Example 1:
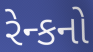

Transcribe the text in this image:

રેન્કનો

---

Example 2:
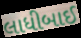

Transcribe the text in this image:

લાધીબાઈ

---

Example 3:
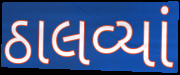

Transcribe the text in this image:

ઠાલવ્યાં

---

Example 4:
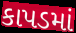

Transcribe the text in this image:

કાપડમાં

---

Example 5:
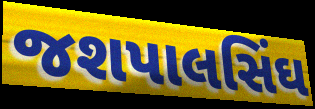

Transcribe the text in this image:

જશપાલસિંઘ